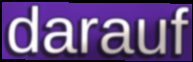
darauf